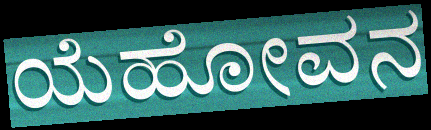
ಯೆಹೋವನ